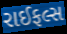
રાઈફલ્સ